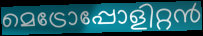
മെട്രോപ്പോളിറ്റൻ